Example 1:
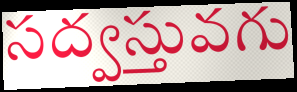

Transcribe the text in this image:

సద్వస్తువగు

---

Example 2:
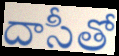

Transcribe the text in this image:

దాసీతో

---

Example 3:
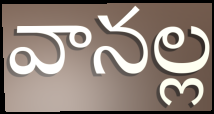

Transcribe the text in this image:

వానల్ల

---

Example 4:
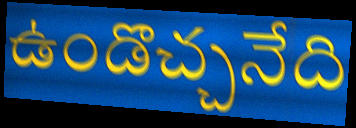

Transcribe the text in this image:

ఉండొచ్చనేది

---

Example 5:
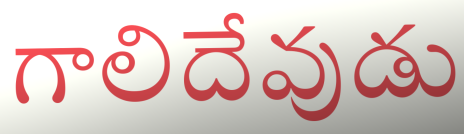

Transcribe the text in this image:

గాలిదేవుడు